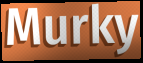
Murky